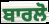
ਬਾਰਲੋ